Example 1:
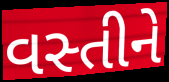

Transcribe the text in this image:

વસ્તીને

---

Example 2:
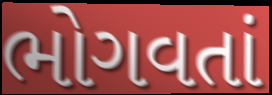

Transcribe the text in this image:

ભોગવતાં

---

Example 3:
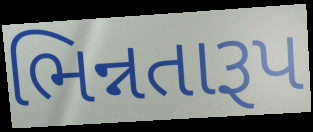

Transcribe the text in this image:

ભિન્નતારૂપ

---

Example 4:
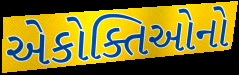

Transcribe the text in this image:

એકોક્તિઓનો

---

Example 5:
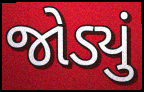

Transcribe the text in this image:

જોડ્યું